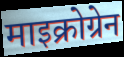
माइक्रोग्रेन